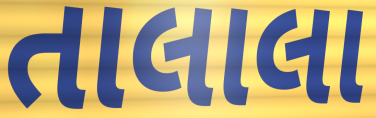
તાલાલા